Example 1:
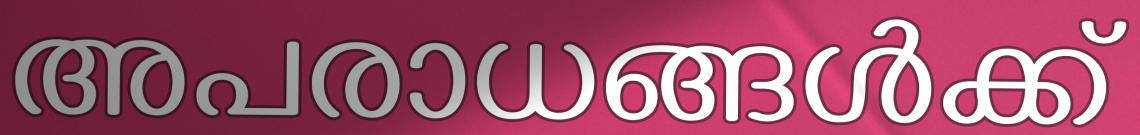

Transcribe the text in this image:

അപരാധങ്ങൾക്ക്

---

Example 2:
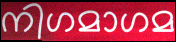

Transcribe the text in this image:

നിഗമാഗമ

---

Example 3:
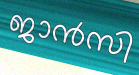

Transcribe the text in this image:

ജാൻസി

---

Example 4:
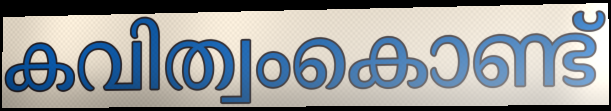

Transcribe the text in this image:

കവിത്വംകൊണ്ട്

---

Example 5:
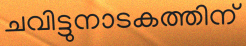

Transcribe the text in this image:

ചവിട്ടുനാടകത്തിന്